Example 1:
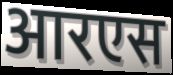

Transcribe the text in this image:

आरएस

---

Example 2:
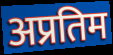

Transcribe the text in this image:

अप्रतिम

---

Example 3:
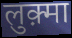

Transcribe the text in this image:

लुक़्मा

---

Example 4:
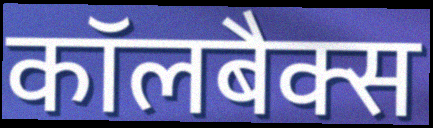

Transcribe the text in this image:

कॉलबैक्स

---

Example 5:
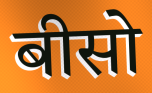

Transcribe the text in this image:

बीसो